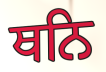
ਥਨਿ